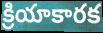
క్రియాకారక